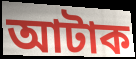
আটাক